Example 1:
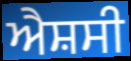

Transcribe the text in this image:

ਐਸ਼ਸੀ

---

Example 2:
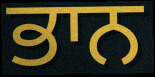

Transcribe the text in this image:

ਭਾਨ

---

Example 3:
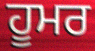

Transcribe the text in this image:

ਹੂਮਰ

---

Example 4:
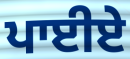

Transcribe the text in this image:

ਪਾਈਏ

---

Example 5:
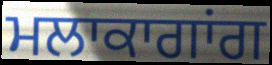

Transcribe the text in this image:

ਮਲਾਕਾਗਾਂਗ